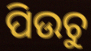
ପିଉଚୁ